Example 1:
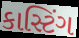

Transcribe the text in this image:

કાસ્ટિંગ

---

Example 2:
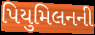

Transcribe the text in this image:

પિયુમિલનની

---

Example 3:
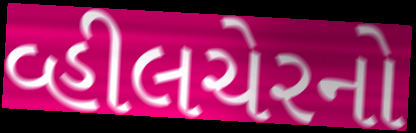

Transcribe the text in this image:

વ્હીલચેરનો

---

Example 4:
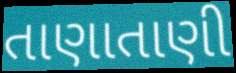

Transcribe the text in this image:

તાણાતાણી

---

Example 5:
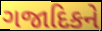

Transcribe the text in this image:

ગજાદિકને